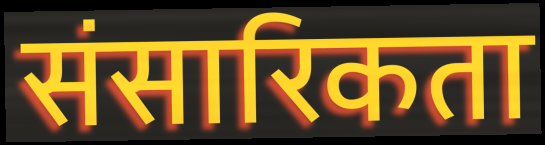
संसारिकता